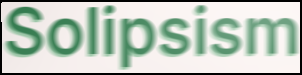
Solipsism